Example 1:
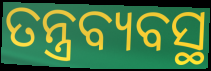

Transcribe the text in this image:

ତନ୍ତ୍ରବ୍ୟବସ୍ଥ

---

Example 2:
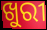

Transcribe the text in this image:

ଖୁରୀ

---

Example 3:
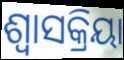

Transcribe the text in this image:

ଶ୍ବାସକ୍ରିୟା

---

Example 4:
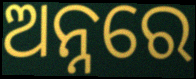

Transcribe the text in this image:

ଅନ୍ନରେ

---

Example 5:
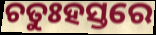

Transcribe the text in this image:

ଚତୁଃହସ୍ତରେ